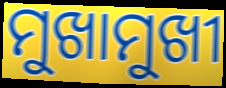
ମୁଖାମୁଖୀ